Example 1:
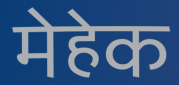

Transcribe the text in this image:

मेहेक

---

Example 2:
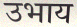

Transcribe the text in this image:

उभाय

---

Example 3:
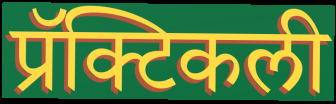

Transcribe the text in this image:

प्रॅक्टिकली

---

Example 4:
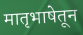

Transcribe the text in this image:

मातृभाषेतून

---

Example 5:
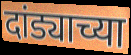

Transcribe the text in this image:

दांड्याच्या